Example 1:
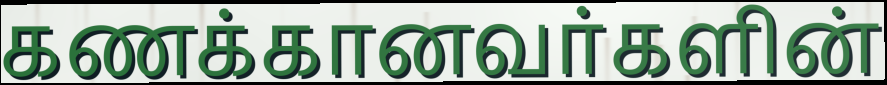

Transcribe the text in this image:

கணக்கானவர்களின்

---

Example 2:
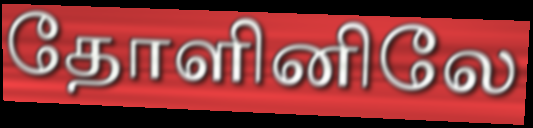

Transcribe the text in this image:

தோளினிலே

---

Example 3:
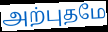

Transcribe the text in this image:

அற்புதமே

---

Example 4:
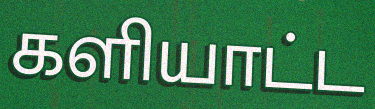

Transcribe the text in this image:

களியாட்ட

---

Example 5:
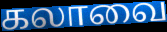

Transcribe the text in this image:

கலாவை